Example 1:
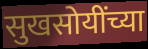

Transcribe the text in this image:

सुखसोयींच्या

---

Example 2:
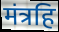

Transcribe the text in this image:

मंत्रहि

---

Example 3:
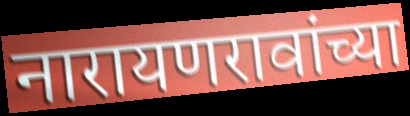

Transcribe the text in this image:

नारायणरावांच्या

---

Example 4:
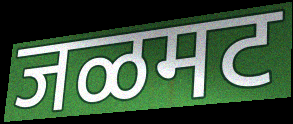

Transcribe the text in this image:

जळमट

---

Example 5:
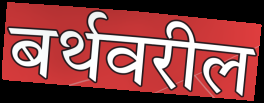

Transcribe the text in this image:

बर्थवरील